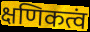
क्षणिकत्वं